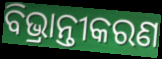
ବିଭ୍ରାନ୍ତୀକରଣ